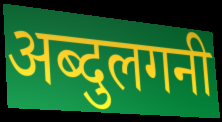
अब्दुलगनी